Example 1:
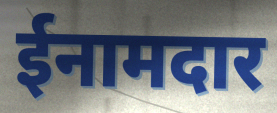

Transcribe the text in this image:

ईनामदार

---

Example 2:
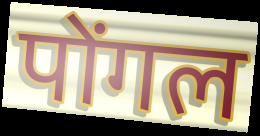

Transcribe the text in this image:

पोंगल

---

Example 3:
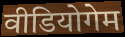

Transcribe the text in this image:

वीडियोगेम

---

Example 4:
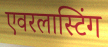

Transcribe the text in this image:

एवरलास्टिंग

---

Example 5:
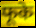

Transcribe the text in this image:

फूके